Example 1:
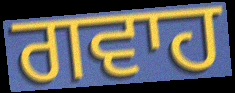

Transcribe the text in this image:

ਗਵਾਹ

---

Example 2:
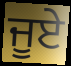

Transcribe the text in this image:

ਜੂਏ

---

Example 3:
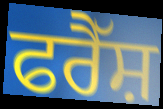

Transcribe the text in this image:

ਫਰੈੱਸ਼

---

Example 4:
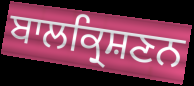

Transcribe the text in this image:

ਬਾਲਕ੍ਰਿਸ਼ਣਨ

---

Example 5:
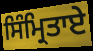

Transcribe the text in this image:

ਸਿੰਮ੍ਰਿਤਾਏ